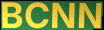
BCNN